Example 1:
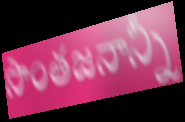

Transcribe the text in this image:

సొంతజనాన్నీ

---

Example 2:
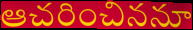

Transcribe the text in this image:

ఆచరించిననూ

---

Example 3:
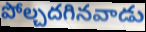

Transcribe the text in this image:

పోల్చదగినవాడు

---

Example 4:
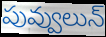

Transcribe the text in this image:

పువ్వులున్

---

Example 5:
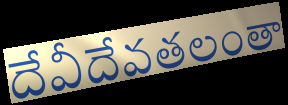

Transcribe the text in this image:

దేవీదేవతలంతా